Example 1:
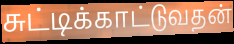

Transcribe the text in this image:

சுட்டிக்காட்டுவதன்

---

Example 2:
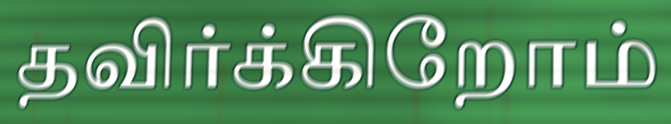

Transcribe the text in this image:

தவிர்க்கிறோம்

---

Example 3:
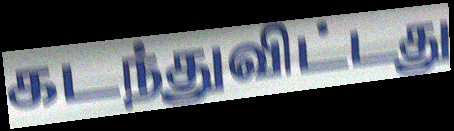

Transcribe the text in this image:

கடந்துவிட்டது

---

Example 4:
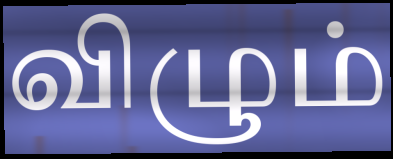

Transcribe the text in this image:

விழும்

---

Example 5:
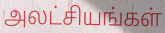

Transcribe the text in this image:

அலட்சியங்கள்